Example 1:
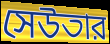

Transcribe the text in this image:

সেউতার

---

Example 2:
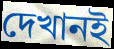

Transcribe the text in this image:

দেখানই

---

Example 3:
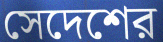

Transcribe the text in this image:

সেদেশের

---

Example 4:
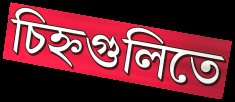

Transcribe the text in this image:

চিহ্নগুলিতে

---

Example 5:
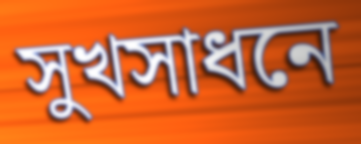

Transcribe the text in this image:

সুখসাধনে